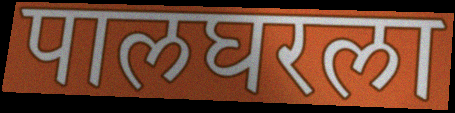
पालघरला